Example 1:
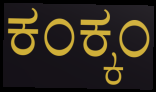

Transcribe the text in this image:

ಕಂಕ್ಕಂ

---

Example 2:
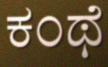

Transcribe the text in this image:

ಕಂಥೆ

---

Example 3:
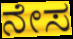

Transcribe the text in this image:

ನೇಸ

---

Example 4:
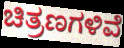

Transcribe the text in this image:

ಚಿತ್ರಣಗಳಿವೆ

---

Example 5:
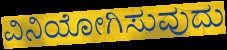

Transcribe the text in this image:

ವಿನಿಯೋಗಿಸುವುದು